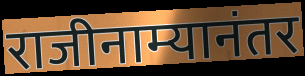
राजीनाम्यानंतर